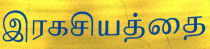
இரகசியத்தை